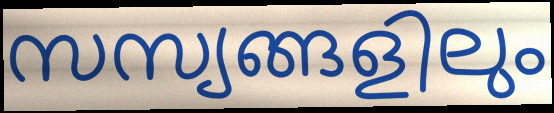
സസ്യങ്ങളിലും